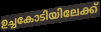
ഉച്ചകോടിയിലേക്ക്